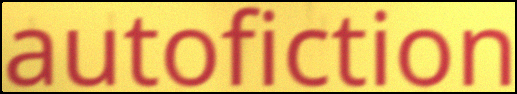
autofiction